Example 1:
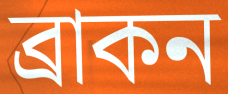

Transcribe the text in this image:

ব্রাকন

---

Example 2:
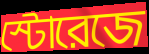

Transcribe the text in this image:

স্টোরেজে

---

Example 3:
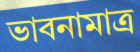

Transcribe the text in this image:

ভাবনামাত্র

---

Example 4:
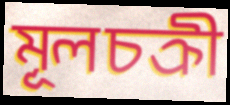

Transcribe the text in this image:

মূলচক্রী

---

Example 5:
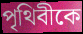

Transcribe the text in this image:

পৃথিবীকে